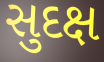
સુદક્ષ